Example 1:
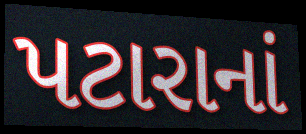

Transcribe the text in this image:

પટારાનાં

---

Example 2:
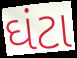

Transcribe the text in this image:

ઘંટા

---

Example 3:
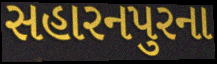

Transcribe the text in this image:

સહારનપુરના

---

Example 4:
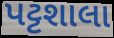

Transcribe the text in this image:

પટ્ટશાલા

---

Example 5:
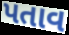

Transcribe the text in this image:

પતાવ